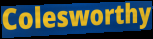
Colesworthy